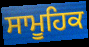
ਸਾਮੂਹਿਕ